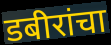
डबीरांचा